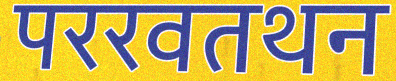
पररवतथन